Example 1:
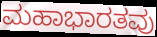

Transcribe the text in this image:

ಮಹಾಭಾರತವು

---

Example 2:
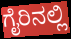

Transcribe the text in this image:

ಗೈರಿನಲ್ಲಿ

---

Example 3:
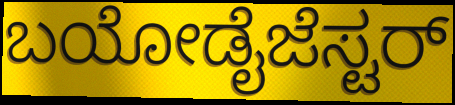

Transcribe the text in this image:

ಬಯೋಡೈಜೆಸ್ಟರ್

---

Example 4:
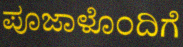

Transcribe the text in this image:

ಪೂಜಾಳೊಂದಿಗೆ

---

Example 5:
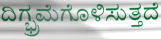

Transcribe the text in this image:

ದಿಗ್ಭ್ರಮೆಗೊಳಿಸುತ್ತದೆ